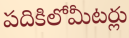
పదికిలోమీటర్లు